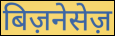
बिज़नेसेज़